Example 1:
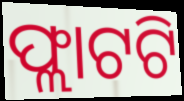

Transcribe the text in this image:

ଫ୍ଲାଟଟି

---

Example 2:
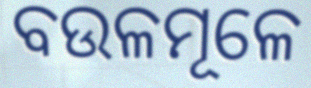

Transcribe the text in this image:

ବଉଳମୂଳେ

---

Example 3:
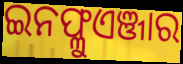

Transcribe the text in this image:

ଇନଫ୍ଳୁଏଞ୍ଜାର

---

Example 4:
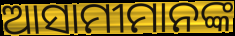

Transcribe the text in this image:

ଆସାମୀମାନଙ୍କ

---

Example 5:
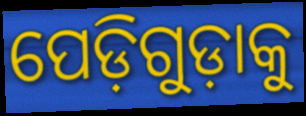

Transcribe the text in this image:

ପେଡ଼ିଗୁଡ଼ାକୁ